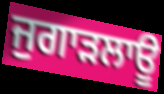
ਜੁਗਾੜਲਾਊ